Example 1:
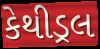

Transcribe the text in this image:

કેથીડ્રલ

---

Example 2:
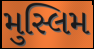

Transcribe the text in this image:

મુસ્લિમ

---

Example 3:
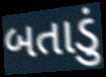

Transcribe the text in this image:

બતાડું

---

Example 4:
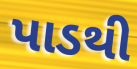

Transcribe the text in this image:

પાડથી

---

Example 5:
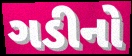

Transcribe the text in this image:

ગડીનો